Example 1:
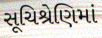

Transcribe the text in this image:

સૂચિશ્રેણિમાં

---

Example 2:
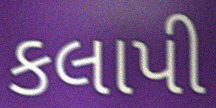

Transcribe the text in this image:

કલાપી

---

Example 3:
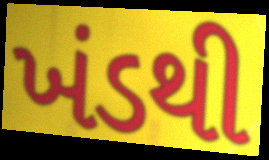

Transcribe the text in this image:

ખંડથી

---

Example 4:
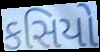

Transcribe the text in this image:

કસિયો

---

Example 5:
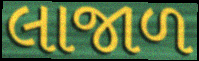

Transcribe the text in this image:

લાજાળ